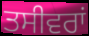
ਤਸੀਵਰਾਂ